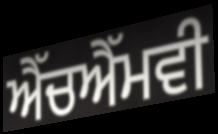
ਐੱਚਐੱਮਵੀ